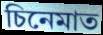
চিনেমাত